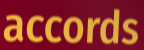
accords